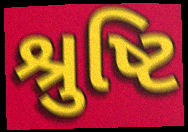
શ્રુષ્ટિ